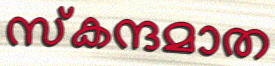
സ്കന്ദമാത